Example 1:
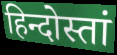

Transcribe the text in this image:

हिन्दोस्तां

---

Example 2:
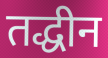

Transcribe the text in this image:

तद्धीन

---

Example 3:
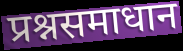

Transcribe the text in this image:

प्रश्नसमाधान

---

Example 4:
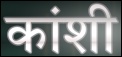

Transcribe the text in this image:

कांशी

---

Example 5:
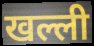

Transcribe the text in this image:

खल्ली